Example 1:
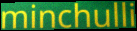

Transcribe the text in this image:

minchulli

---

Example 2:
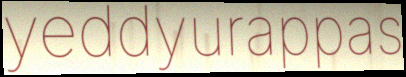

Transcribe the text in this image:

yeddyurappas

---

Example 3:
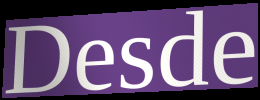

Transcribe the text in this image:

Desde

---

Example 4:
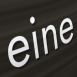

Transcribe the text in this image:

eine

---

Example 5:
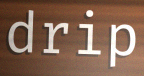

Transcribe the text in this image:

drip